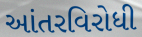
આંતરવિરોધી